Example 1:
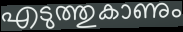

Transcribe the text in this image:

എടുത്തുകാണും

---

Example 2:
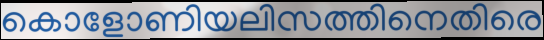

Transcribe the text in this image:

കൊളോണിയലിസത്തിനെതിരെ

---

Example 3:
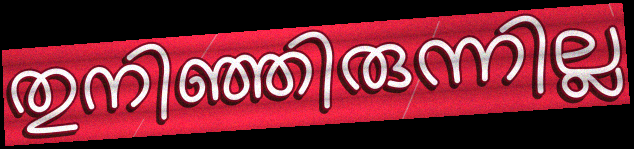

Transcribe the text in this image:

തുനിഞ്ഞിരുന്നില്ല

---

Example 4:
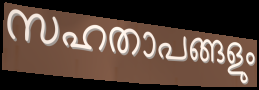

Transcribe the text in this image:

സഹതാപങ്ങളും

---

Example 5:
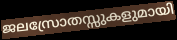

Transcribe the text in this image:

ജലസ്രോതസ്സുകളുമായി